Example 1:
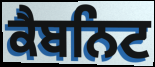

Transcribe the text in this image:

ਕੈਬਨਿਟ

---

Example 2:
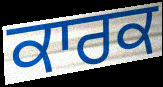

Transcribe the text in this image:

ਕਾਰਕ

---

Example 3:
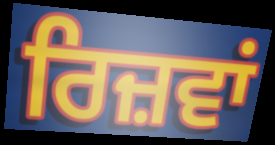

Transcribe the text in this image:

ਰਿਜ਼ਵਾਂ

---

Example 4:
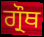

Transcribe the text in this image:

ਗ੍ਰੌਥ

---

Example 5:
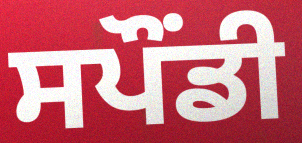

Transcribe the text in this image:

ਸਪੌਂਡੀ